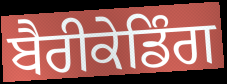
ਬੈਰੀਕੇਡਿੰਗ